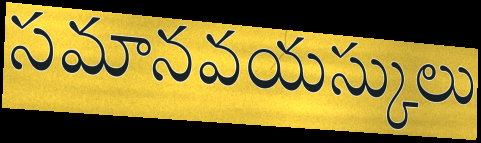
సమానవయస్కులు